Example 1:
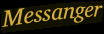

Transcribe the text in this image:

Messanger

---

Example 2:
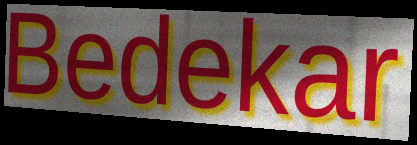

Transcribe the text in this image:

Bedekar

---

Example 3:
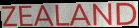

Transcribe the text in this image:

ZEALAND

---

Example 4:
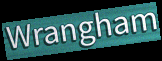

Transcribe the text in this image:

Wrangham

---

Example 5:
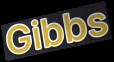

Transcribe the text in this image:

Gibbs